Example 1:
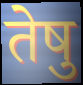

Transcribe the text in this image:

तेषु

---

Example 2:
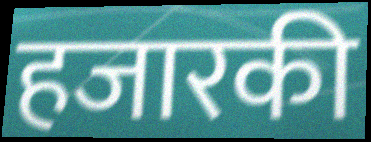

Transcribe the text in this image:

हजारकी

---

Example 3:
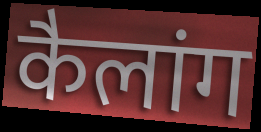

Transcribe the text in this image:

कैलांग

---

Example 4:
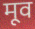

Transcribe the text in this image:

मूव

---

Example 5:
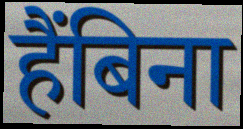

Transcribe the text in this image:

हैंबिना